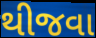
થીજવા